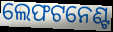
ଲେଫଟନେଣ୍ଟ